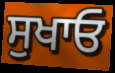
ਸੁਖਾਓ